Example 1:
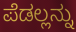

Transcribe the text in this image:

ಪೆಡಲ್ಲನ್ನು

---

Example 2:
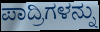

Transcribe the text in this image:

ಪಾದ್ರಿಗಳನ್ನು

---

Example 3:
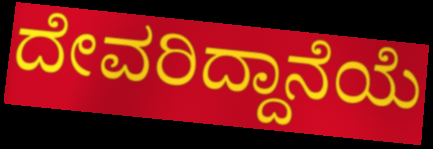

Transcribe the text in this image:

ದೇವರಿದ್ದಾನೆಯೆ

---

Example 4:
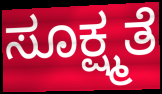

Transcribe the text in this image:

ಸೂಕ್ಷ್ಮತೆ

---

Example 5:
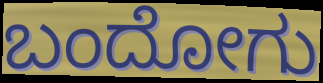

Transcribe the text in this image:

ಬಂದೋಗು